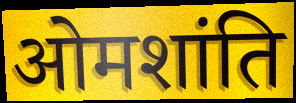
ओमशांति